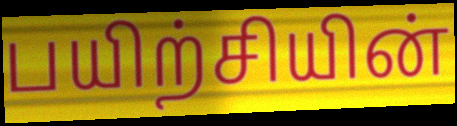
பயிற்சியின்